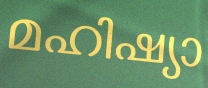
മഹിഷ്യാ